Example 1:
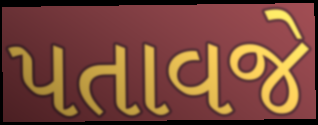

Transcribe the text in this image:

પતાવજે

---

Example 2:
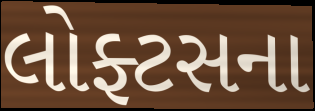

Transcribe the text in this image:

લોફ્ટસના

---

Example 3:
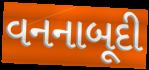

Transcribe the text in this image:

વનનાબૂદી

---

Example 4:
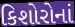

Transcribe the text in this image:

કિશોરોનાં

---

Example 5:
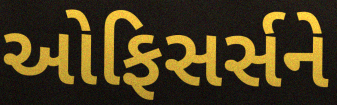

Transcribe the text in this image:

ઓફિસર્સને